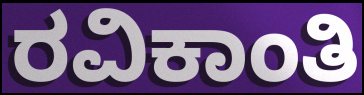
ರವಿಕಾಂತಿ